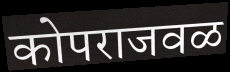
कोपराजवळ